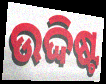
ଉଦ୍ଦିଷ୍ଟ